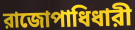
রাজোপাধিধারী